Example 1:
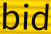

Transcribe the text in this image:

bid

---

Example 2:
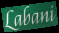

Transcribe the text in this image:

Labani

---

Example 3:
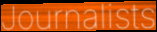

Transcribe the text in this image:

Journalists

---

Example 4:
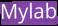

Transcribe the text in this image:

Mylab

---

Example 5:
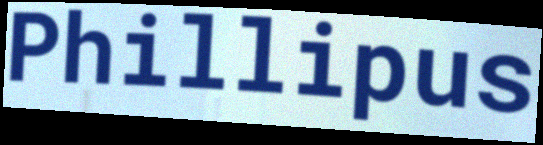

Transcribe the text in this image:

Phillipus